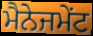
ਮੈਨੇਜਮੇੰਟ